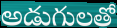
అడుగులతో